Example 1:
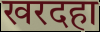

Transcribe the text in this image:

खरदहा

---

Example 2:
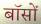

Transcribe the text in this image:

बॉसों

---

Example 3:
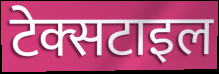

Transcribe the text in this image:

टेक्‍सटाइल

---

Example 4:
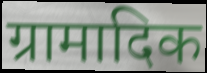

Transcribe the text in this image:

ग्रामादिक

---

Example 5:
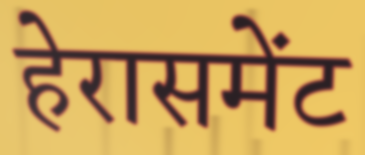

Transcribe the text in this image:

हेरासमेंट